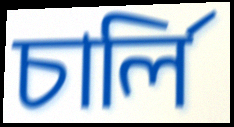
চার্লি